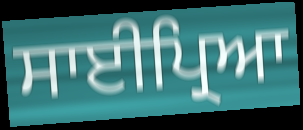
ਸਾਈਪ੍ਰਿਆ